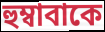
হুম্বাবাকে